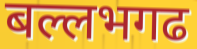
बल्लभगढ